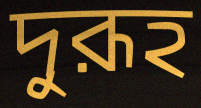
দুরূহ